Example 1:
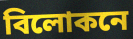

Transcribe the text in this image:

বিলোকনে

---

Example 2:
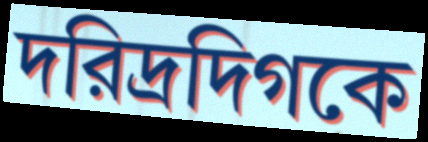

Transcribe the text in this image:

দরিদ্রদিগকে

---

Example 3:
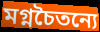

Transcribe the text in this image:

মগ্নচৈতন্যে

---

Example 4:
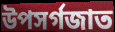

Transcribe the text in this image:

উপসর্গজাত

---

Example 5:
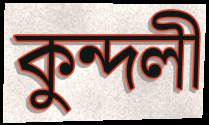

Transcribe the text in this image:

কুন্দলী